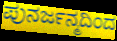
ಪುನರ್ಜನ್ಮದಿಂದ